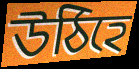
উঠিহে